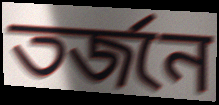
তর্জনে